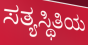
ಸತ್ಯಸ್ಥಿತಿಯ